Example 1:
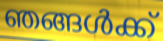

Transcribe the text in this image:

ഞങ്ങൾക്ക്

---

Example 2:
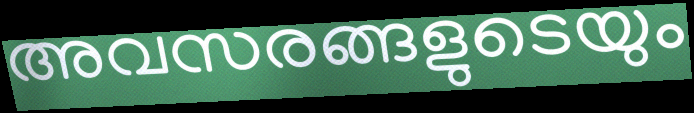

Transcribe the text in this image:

അവസരങ്ങളുടെയും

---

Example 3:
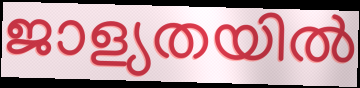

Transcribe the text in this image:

ജാള്യതയിൽ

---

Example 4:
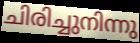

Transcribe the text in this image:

ചിരിച്ചുനിന്നു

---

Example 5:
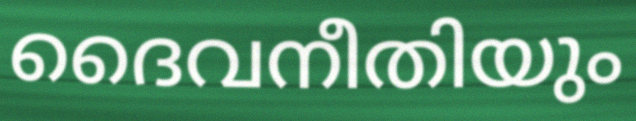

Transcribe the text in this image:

ദൈവനീതിയും